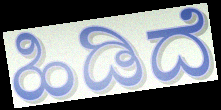
ಹಿಡಿದೆ